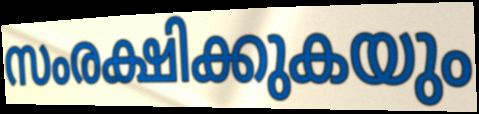
സംരക്ഷിക്കുകയും